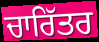
ਚਾਰਿੱਤਰ